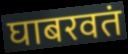
घाबरवतं